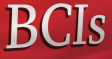
BCIs